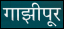
गाझीपूर